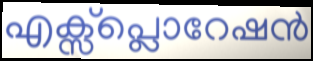
എക്സ്പ്ലൊറേഷൻ